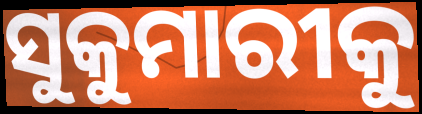
ସୁକୁମାରୀକୁ